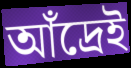
আঁদ্রেই